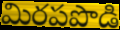
మిరపపొడి